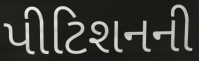
પીટિશનની